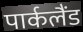
पार्कलैंड